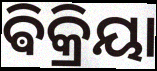
ଵିକ୍ରିୟା